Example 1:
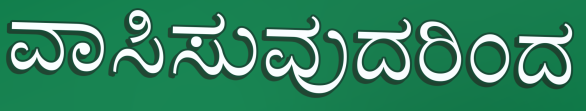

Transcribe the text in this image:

ವಾಸಿಸುವುದರಿಂದ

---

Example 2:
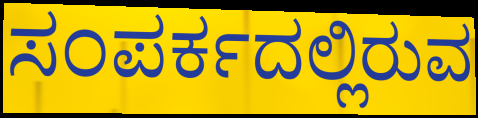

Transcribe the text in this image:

ಸಂಪರ್ಕದಲ್ಲಿರುವ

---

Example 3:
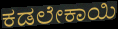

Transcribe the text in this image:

ಕಡಲೇಕಾಯಿ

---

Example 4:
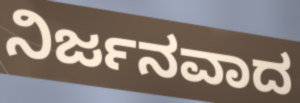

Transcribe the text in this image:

ನಿರ್ಜನವಾದ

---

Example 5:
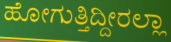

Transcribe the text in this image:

ಹೋಗುತ್ತಿದ್ದೀರಲ್ಲಾ